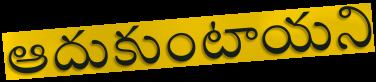
ఆదుకుంటాయని